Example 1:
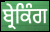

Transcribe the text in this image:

ਬ੍ਰੇਕਿੰਗ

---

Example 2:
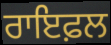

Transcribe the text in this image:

ਰਾਇਫ਼ਲ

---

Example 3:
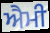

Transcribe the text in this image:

ਐਮੀ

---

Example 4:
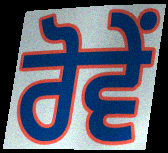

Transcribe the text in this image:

ਰੋਵੇਂ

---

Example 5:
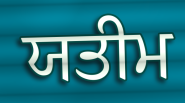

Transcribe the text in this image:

ਯਤੀਮ